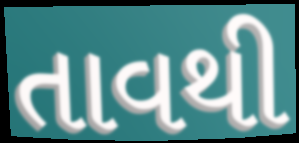
તાવથી